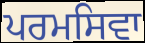
ਪਰਮਸਿਵਾ